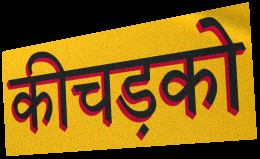
कीचड़को